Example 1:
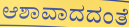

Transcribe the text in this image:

ಆಶಾವಾದದಂತೆ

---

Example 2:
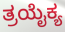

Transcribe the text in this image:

ತ್ರಯೈಕ್ಯ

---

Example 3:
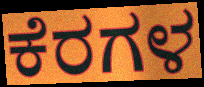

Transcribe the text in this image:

ಕೆರಗಳ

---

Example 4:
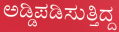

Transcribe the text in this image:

ಅಡ್ಡಿಪಡಿಸುತ್ತಿದ್ದ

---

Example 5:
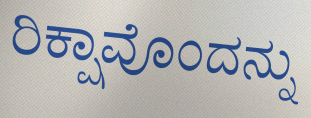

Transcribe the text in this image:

ರಿಕ್ಷಾವೊಂದನ್ನು